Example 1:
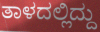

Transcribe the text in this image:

ತಾಳದಲ್ಲಿದ್ದು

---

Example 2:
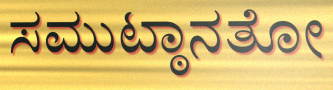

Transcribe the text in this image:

ಸಮುಟ್ಠಾನತೋ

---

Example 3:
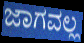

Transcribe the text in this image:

ಜಾಗವಲ್ಲ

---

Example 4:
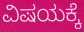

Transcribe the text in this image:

ವಿಷಯಕ್ಕೆ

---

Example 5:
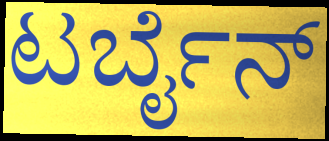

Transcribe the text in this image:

ಟರ್ಬೈನ್